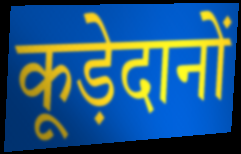
कूड़ेदानों